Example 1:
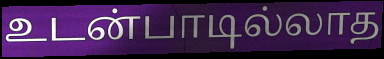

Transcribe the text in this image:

உடன்பாடில்லாத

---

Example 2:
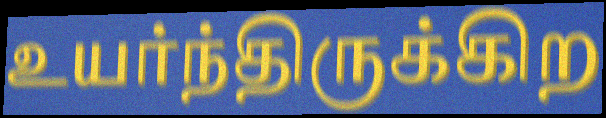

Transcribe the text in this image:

உயர்ந்திருக்கிற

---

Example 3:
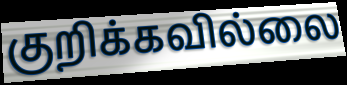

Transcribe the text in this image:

குறிக்கவில்லை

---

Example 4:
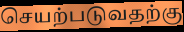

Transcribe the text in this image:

செயற்படுவதற்கு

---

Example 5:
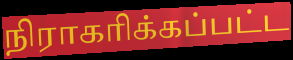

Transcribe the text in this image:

நிராகரிக்கப்பட்ட